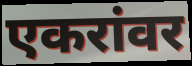
एकरांवर